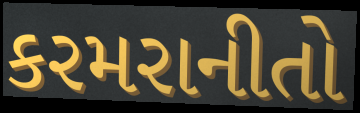
કરમરાનીતો